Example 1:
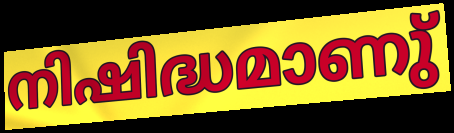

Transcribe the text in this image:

നിഷിദ്ധമാണു്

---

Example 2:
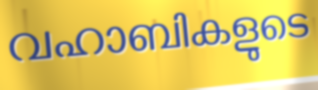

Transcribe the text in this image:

വഹാബികളുടെ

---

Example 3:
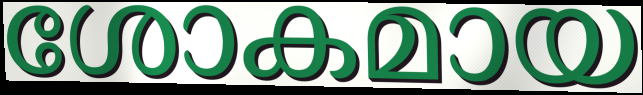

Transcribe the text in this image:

ശോകമായ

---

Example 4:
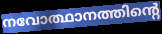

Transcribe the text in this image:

നവോത്ഥാനത്തിന്റെ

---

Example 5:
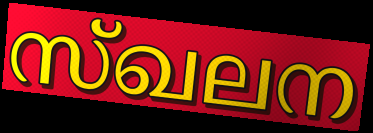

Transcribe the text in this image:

സ്ഖലന